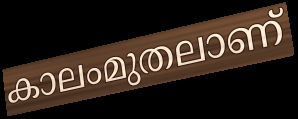
കാലംമുതലാണ്